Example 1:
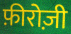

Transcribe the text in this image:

फ़ीरोज़ी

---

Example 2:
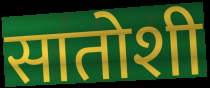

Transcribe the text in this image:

सातोशी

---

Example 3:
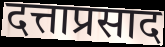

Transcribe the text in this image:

दत्ताप्रसाद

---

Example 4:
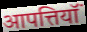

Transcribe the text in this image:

आपत्तियॉं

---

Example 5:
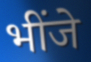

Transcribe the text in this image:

भींजे